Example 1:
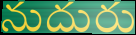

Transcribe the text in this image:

నుదురు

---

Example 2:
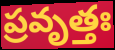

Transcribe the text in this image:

ప్రవృత్తః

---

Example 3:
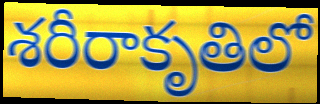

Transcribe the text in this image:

శరీరాకృతిలో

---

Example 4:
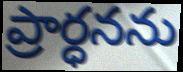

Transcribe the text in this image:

ప్రార్ధనను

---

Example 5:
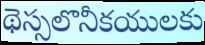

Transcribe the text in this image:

థెస్సలొనీకయులకు